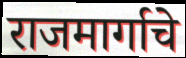
राजमार्गाचे